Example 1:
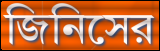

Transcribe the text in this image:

জিনিসের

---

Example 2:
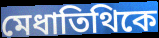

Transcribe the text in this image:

মেধাতিথিকে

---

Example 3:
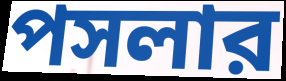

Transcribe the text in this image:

পসলার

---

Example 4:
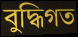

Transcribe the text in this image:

বুদ্ধিগত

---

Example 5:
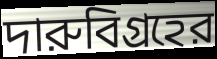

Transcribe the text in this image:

দারুবিগ্রহের